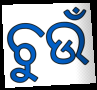
ଚୁଉଁ